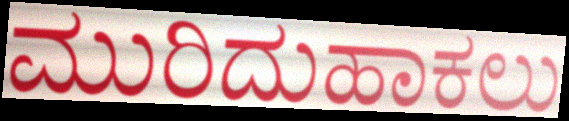
ಮುರಿದುಹಾಕಲು